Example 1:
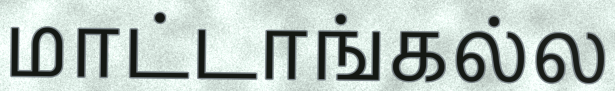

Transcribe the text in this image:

மாட்டாங்கல்ல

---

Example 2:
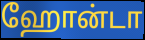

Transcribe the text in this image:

ஹோன்டா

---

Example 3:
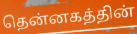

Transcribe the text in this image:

தென்னகத்தின்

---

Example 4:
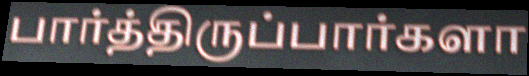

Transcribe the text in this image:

பார்த்திருப்பார்களா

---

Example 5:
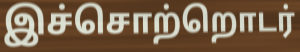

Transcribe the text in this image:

இச்சொற்றொடர்